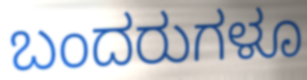
ಬಂದರುಗಳೂ